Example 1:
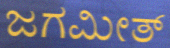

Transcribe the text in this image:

ಜಗಮೀತ್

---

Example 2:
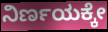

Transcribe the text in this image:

ನಿರ್ಣಯಕ್ಕೇ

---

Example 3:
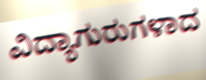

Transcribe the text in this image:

ವಿದ್ಯಾಗುರುಗಳಾದ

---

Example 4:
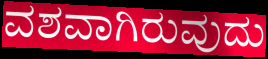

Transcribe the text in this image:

ವಶವಾಗಿರುವುದು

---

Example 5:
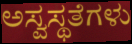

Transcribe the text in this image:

ಅಸ್ವಸ್ಥತೆಗಳು